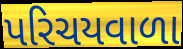
પરિચયવાળા